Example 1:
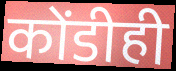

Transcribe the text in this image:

कोंडीही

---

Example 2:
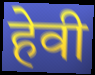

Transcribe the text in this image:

हेवी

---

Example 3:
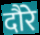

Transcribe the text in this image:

दौरे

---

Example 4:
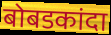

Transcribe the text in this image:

बोबडकांदा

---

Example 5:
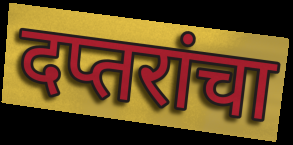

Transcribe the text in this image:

दप्तरांचा